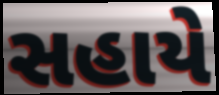
સહાયે